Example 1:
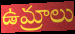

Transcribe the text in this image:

ఉమ్రాలు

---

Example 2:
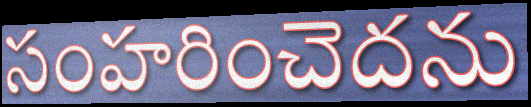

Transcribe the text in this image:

సంహరించెదను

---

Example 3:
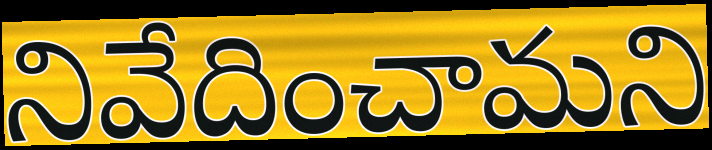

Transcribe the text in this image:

నివేదించామని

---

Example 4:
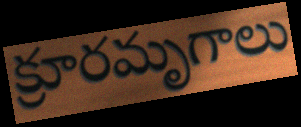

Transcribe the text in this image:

క్రూరమృగాలు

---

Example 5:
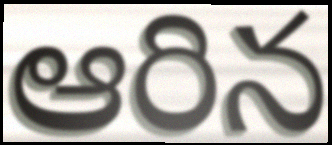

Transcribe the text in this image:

ఆరిన